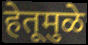
हेतूमुळे